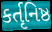
કર્તૃનિષ્ઠ